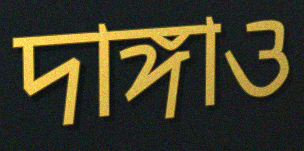
দাঙ্গাও